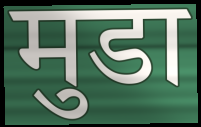
मुडा